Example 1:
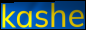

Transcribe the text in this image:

kashe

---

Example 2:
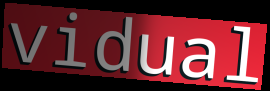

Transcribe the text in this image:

vidual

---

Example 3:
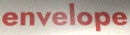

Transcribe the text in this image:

envelope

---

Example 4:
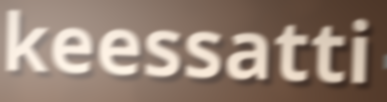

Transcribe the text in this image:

keessatti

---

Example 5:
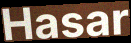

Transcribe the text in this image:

Hasar